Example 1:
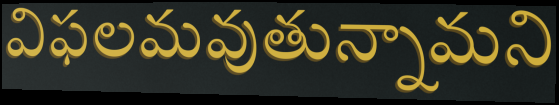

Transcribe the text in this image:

విఫలమవుతున్నామని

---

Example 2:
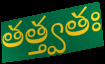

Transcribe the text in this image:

తత్త్వతః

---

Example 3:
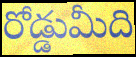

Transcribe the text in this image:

రోడ్డుమీది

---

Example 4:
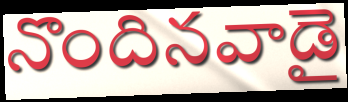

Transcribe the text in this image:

నొందినవాడై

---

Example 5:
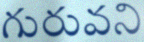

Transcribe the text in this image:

గురువని